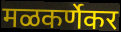
मळकर्णेकर